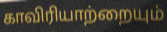
காவிரியாற்றையும்